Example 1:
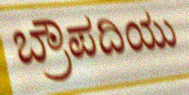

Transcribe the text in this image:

ಬ್ರೌಪದಿಯು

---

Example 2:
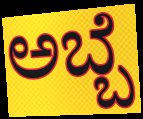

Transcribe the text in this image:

ಅಬ್ಬೆ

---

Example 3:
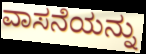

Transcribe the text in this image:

ವಾಸನೆಯನ್ನು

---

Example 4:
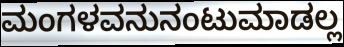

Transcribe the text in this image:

ಮಂಗಳವನುನಂಟುಮಾಡಲ್ಲ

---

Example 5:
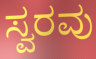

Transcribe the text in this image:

ಸ್ವರವು